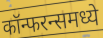
कॉन्फरन्समध्ये